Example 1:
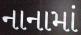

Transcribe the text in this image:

નાનામાં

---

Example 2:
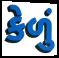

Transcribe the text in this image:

કેળું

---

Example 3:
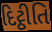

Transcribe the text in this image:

દિટ્ઠીતિ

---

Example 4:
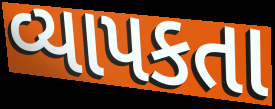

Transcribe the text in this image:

વ્યાપકતા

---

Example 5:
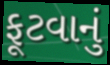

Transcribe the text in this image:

ફૂટવાનું